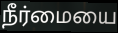
நீர்மையை